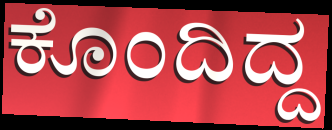
ಕೊಂದಿದ್ದ